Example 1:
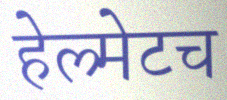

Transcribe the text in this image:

हेल्मेटच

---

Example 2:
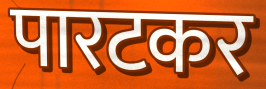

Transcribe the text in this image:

पारटकर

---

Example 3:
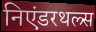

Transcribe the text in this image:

निएंडरथल्स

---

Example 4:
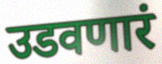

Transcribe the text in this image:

उडवणारं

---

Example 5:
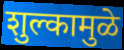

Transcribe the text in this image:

शुल्कामुळे